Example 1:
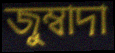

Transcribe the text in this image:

জুম্বাদা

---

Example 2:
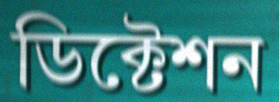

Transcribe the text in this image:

ডিক্টেশন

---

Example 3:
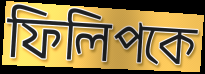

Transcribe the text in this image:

ফিলিপকে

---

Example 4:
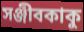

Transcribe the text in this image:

সঞ্জীবকাকু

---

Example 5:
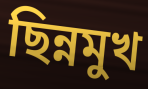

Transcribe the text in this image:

ছিন্নমুখ